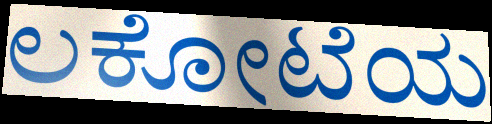
ಲಕೋಟೆಯ